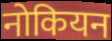
नोकियन